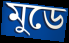
মুডে